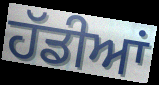
ਹੱਡੀਆਂ